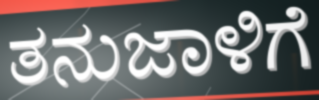
ತನುಜಾಳಿಗೆ